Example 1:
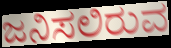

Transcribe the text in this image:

ಜನಿಸಲಿರುವ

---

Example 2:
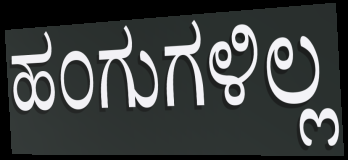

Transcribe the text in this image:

ಹಂಗುಗಳಿಲ್ಲ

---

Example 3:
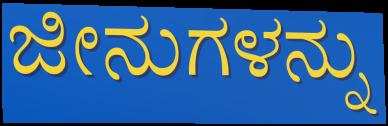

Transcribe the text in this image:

ಜೀನುಗಳನ್ನು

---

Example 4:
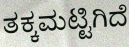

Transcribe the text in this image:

ತಕ್ಕಮಟ್ಟಿಗಿದೆ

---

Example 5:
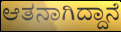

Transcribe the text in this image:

ಆತನಾಗಿದ್ದಾನೆ